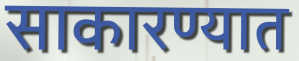
साकारण्यात